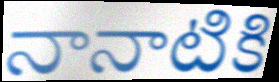
నానాటికి